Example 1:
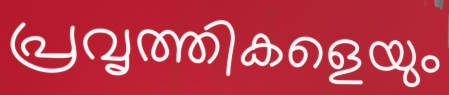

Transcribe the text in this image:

പ്രവൃത്തികളെയും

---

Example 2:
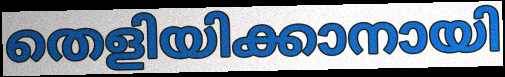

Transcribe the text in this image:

തെളിയിക്കാനായി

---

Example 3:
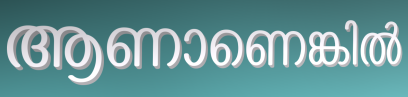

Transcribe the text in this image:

ആണാണെങ്കിൽ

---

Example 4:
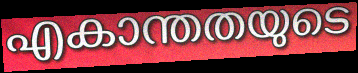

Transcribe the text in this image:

എകാന്തതയുടെ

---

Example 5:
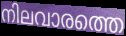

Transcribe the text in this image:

നിലവാരത്തെ